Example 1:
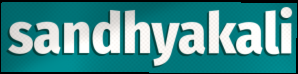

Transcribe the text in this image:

sandhyakali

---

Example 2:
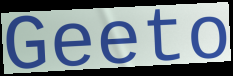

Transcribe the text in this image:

Geeto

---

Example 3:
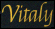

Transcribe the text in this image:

Vitaly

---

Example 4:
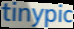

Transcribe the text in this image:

tinypic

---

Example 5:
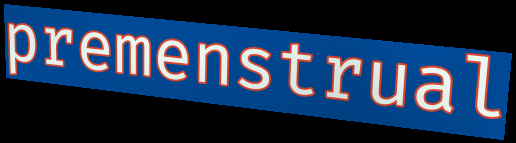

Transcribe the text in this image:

premenstrual